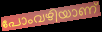
പോംവഴിയാണ്